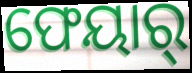
ଫେୟାର୍